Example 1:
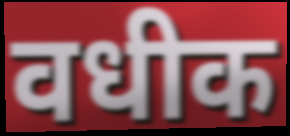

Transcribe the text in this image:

वधीक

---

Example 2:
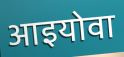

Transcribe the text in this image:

आइयोवा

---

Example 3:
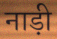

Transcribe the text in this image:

नाड़ी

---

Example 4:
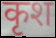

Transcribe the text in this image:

कृश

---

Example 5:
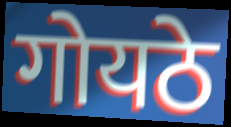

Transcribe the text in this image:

गोयठे